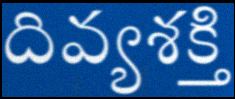
దివ్యశక్తి